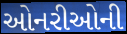
ઓનરીઓની